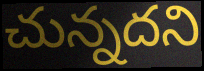
చున్నదని